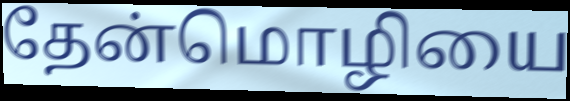
தேன்மொழியை